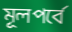
মূলপর্বে